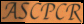
ASCPCR